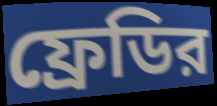
ফ্রেডির